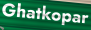
Ghatkopar